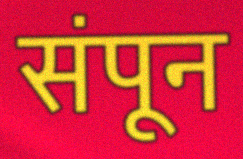
संपून